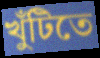
খুঁটিতে